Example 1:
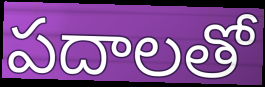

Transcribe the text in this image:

పదాలతో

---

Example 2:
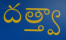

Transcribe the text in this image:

దత్త్వా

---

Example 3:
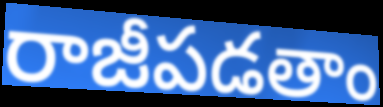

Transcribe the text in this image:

రాజీపడతాం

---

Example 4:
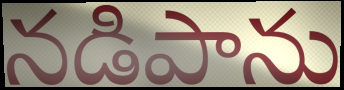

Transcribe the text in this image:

నడిపాను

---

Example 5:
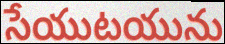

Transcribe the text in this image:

సేయుటయును